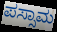
ಪಸ್ಸಾಮ